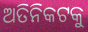
ଅତିନିକଟକୁ